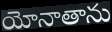
యోనాతాను